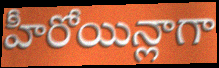
హీరోయిన్లాగా